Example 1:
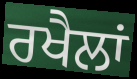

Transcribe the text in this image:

ਰਖੈਲਾਂ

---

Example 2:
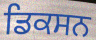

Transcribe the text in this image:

ਡਿਕਸਨ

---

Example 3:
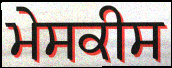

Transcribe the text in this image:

ਮੇਸਕੀਸ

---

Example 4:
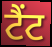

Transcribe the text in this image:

ਟੈਂਟ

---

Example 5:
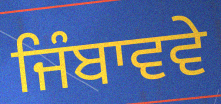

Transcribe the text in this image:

ਜਿੰਬਾਵਵੇ